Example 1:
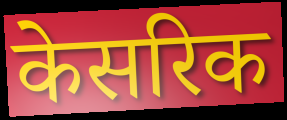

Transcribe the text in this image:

केसरिक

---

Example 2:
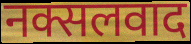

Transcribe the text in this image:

नक्सलवाद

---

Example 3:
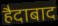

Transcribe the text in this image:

हैदाबाद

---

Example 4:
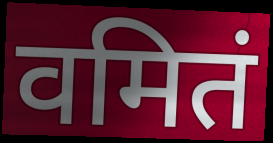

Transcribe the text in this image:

वमितं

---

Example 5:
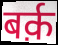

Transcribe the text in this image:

बर्क़